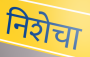
निशेचा